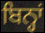
ਬਿਨ੍ਹਾਂ